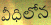
వీధిలోన